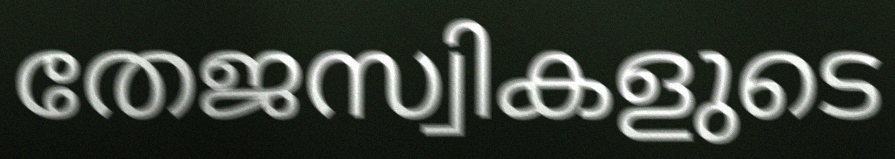
തേജസ്വികളുടെ